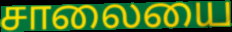
சாலையை